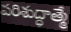
పరిశుద్ధాత్మే